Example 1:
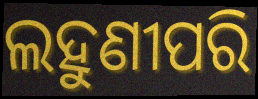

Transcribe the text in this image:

ଲହୁଣୀପରି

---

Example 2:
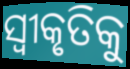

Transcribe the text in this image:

ସ୍ବୀକୃତିକୁ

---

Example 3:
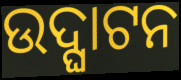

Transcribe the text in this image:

ଉଦ୍ଘାଟନ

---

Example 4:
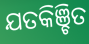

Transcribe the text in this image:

ଯତକିଞ୍ଚିତ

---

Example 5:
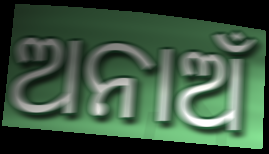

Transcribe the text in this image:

ଅନାଅଁ